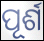
ପୂର୍ଶ